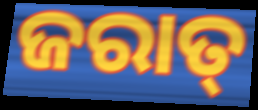
ଜରାତ୍